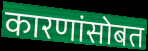
कारणांसोबत